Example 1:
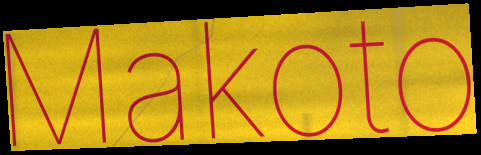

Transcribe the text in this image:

Makoto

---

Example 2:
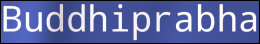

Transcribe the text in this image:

Buddhiprabha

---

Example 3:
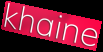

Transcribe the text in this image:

khaine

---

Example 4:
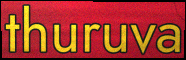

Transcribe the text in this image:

thuruva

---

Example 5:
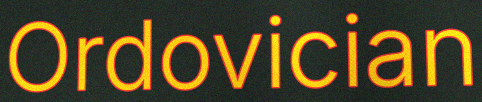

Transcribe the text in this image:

Ordovician